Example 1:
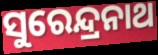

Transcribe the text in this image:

ସୁରେନ୍ଦ୍ରନାଥ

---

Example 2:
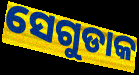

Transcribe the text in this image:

ସେଗୁଡାକ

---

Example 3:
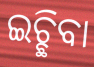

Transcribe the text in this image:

ଇଚ୍ଛିବା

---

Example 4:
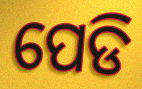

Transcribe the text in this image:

ପେଡି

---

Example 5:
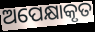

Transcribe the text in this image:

ଅପେକ୍ଷାକୃତ